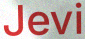
Jevi